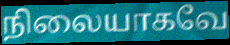
நிலையாகவே